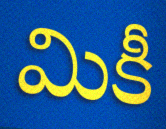
మికీ